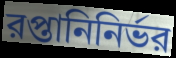
রপ্তানিনির্ভর